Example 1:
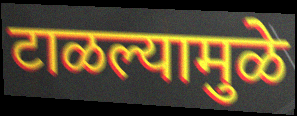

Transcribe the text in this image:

टाळल्यामुळे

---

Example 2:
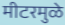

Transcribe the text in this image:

मीटरमुळे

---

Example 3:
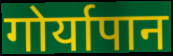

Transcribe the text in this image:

गोर्यापान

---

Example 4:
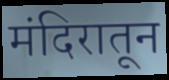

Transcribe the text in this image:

मंदिरातून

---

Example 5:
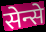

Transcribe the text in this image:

सेन्से